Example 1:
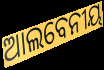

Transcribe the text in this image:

ଆଲବେନୀୟ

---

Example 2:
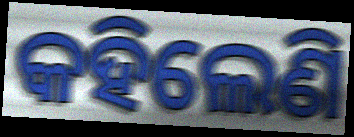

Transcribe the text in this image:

କହିଲେଣି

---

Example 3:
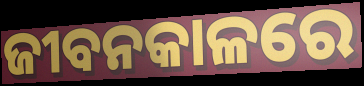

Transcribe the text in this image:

ଜୀବନକାଳରେ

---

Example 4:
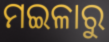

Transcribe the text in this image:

ମଇଳାରୁ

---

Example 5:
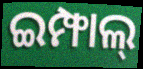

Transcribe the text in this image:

ଇମ୍ଫାଲ୍